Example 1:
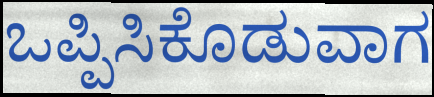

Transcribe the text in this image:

ಒಪ್ಪಿಸಿಕೊಡುವಾಗ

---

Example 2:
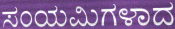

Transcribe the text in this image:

ಸಂಯಮಿಗಳಾದ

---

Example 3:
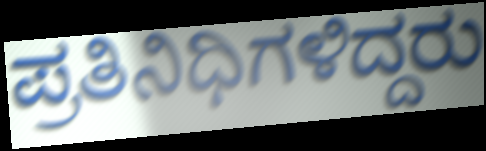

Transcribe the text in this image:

ಪ್ರತಿನಿಧಿಗಳಿದ್ದರು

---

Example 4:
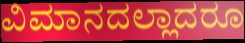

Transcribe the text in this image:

ವಿಮಾನದಲ್ಲಾದರೂ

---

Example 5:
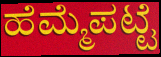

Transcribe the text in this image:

ಹೆಮ್ಮೆಪಟ್ಟೆ